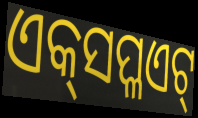
ଏକ୍‍ସପ୍ଳଏଟ୍